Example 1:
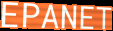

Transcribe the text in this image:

EPANET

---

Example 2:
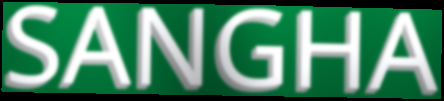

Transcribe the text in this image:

SANGHA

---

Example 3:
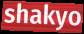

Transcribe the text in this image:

shakyo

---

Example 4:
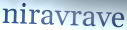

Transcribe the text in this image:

niravrave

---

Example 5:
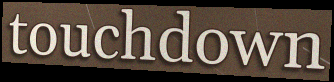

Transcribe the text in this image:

touchdown